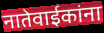
नातेवाईकांना